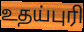
உதய்புரி